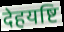
देहयष्टि